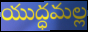
యుద్ధమల్ల